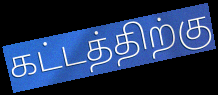
கட்டத்திற்கு